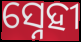
ସ୍ନେହୀ